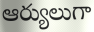
ఆర్యులుగా